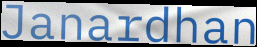
Janardhan